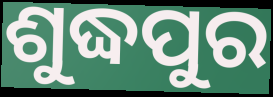
ଶୁଦ୍ଧପୁର